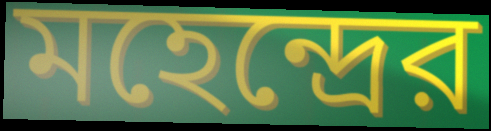
মহেন্দ্রের